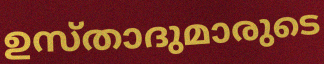
ഉസ്താദുമാരുടെ